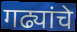
गढ्यांचे